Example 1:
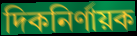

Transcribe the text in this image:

দিকনির্ণায়ক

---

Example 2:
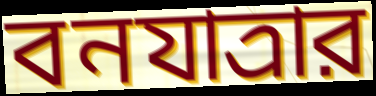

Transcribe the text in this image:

বনযাত্রার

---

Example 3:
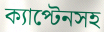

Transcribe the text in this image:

ক্যাপ্টেনসহ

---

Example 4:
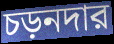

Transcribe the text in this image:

চড়নদার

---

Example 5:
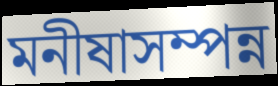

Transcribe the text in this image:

মনীষাসম্পন্ন